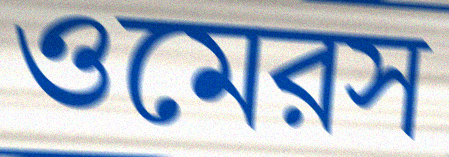
ওমেরস